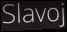
Slavoj